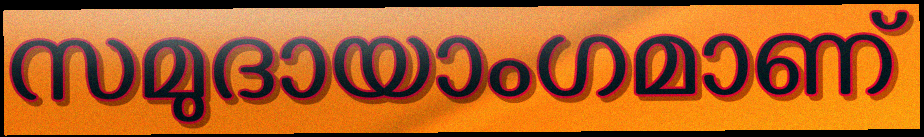
സമുദായാംഗമാണ്